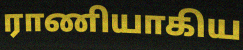
ராணியாகிய